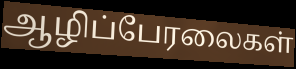
ஆழிப்பேரலைகள்